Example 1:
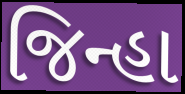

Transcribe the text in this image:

જિન્હા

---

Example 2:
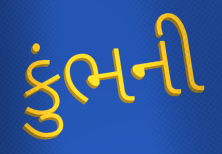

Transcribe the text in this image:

કુંભની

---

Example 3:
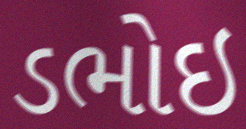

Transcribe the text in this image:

ડભોઇ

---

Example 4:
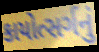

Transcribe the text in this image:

કાયોત્સર્ગનું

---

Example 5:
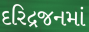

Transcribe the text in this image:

દરિદ્રજનમાં